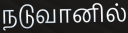
நடுவானில்